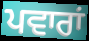
ਪਵਾਰਾਂ